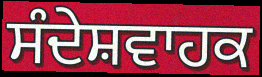
ਸੰਦੇਸ਼ਵਾਹਕ